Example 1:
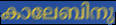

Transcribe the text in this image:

കാലേബിനു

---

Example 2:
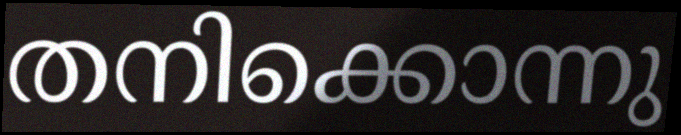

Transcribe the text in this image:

തനിക്കൊന്നു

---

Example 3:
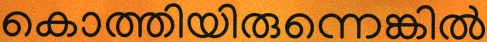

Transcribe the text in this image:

കൊത്തിയിരുന്നെങ്കിൽ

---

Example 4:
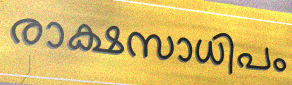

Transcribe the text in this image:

രാക്ഷസാധിപം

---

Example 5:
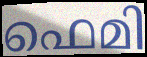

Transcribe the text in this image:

ഫെമി